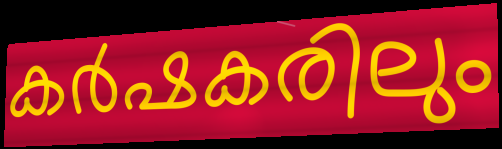
കർഷകരിലും